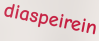
diaspeirein